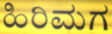
ಹಿರಿಮಗ